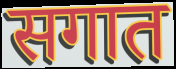
सगात